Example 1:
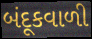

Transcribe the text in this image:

બંદૂકવાળી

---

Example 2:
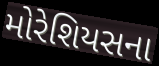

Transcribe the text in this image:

મોરેશિયસના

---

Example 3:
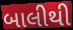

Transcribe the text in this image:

બાલીથી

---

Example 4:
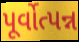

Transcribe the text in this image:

પૂર્વોત્પન્ન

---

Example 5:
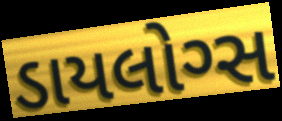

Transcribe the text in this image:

ડાયલોગ્સ